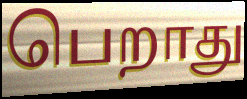
பெறாது